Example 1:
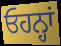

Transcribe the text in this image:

ਓਹਨ੍ਹਾਂ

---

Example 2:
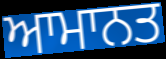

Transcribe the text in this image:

ਆਮਾਨਤ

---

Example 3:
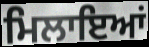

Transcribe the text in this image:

ਮਿਲਾਇਆਂ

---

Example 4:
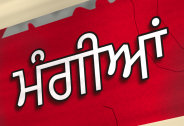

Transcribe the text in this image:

ਮੰਗੀਆਂ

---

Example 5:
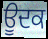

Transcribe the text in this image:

ਊਦਕ